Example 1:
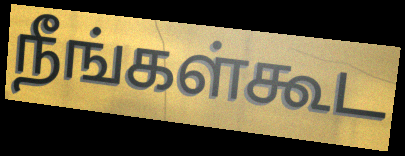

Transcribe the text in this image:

நீங்கள்கூட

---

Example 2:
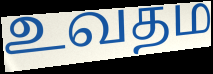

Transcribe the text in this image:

உவதம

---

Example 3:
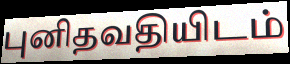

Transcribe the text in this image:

புனிதவதியிடம்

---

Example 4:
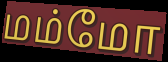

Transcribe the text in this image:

மம்மோ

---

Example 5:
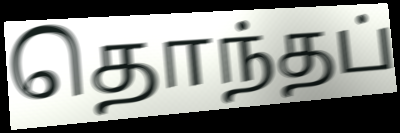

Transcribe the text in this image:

தொந்தப்